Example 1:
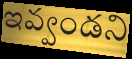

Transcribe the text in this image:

ఇవ్వండని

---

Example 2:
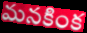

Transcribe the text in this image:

మనకింక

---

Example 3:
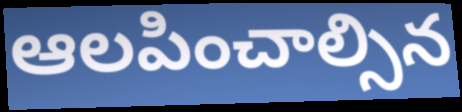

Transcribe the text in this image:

ఆలపించాల్సిన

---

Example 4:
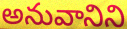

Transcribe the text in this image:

అనువానిని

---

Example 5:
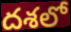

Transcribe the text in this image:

దశలో